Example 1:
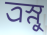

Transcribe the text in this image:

ত্রস্নু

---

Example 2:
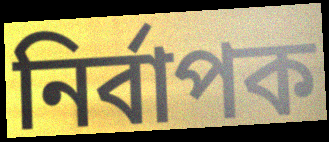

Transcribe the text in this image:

নির্বাপক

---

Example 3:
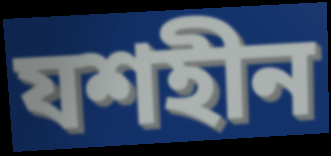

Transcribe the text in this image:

যশহীন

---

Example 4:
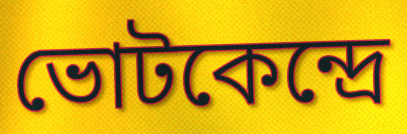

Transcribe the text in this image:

ভোটকেন্দ্রে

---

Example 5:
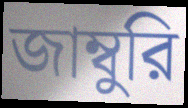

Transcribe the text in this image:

জাম্বুরি